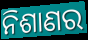
ନିଶାଣର